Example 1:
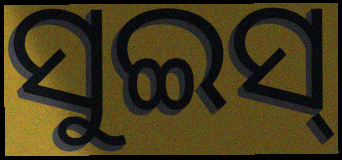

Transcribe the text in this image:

ସୁଇସ୍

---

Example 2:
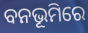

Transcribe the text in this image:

ବନଭୂମିରେ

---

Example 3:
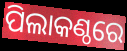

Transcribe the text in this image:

ପିଲାକଣ୍ଠରେ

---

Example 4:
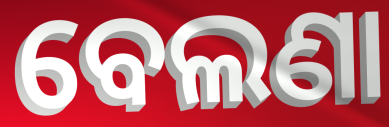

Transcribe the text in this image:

ବେଲଣା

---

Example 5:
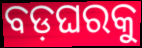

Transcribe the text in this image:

ବଡ଼ଘରକୁ